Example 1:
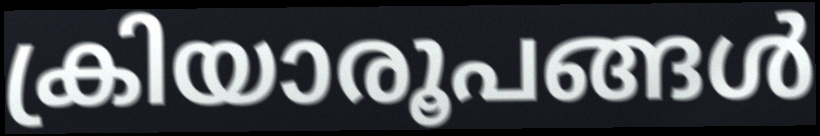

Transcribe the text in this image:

ക്രിയാരൂപങ്ങൾ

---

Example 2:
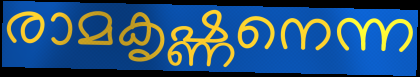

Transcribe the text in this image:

രാമകൃഷ്ണനെന്ന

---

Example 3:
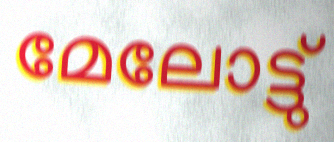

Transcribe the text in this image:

മേലോട്ടു്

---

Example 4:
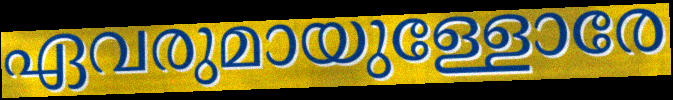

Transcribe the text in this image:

ഏവരുമായുള്ളോരേ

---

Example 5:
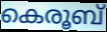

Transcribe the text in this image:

കെരൂബ്